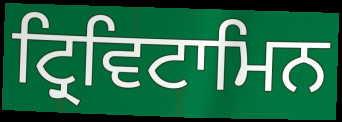
ਟ੍ਰਿਵਿਟਾਮਿਨ